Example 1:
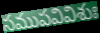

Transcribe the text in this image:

సముపవివిశుః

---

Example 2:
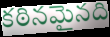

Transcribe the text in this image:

కఠినమైనది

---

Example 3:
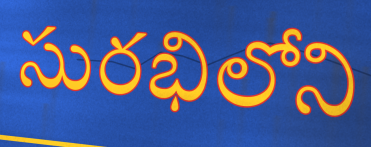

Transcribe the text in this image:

సురభిలోని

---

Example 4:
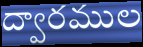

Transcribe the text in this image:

ద్వారముల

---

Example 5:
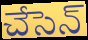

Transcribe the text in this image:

చేసెన్